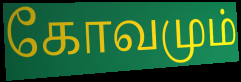
கோவமும்